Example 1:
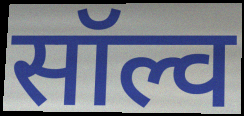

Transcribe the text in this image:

सॉल्व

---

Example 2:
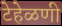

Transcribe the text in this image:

टेहेळणी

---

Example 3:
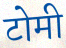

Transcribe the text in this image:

टोमी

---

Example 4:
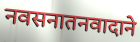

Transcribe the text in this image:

नवसनातनवादाने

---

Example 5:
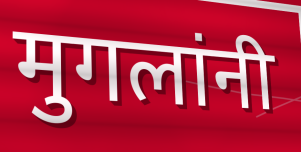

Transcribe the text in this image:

मुगलांनी